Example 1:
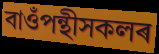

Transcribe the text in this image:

বাওঁপন্থীসকলৰ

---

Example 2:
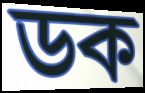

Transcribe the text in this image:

ডক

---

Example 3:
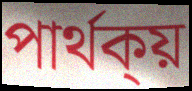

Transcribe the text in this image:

পাৰ্থক্য়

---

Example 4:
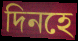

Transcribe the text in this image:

দিনহে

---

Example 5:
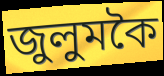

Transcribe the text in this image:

জুলুমকৈ